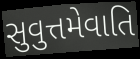
સુવુત્તમેવાતિ